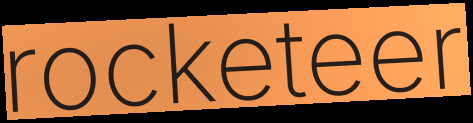
rocketeer